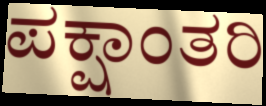
ಪಕ್ಷಾಂತರಿ